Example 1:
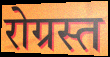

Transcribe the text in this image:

रोग्रस्त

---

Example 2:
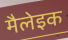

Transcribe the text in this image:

मैलेइक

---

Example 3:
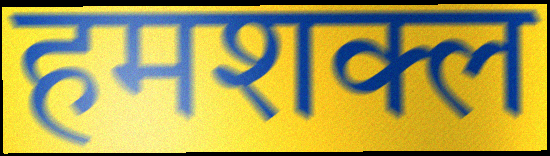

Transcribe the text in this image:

हमशक्ल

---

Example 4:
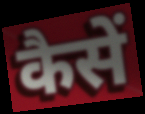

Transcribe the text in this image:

कैसें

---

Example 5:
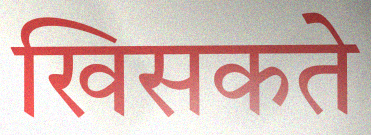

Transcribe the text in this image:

खिसकते